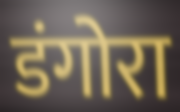
डंगोरा